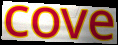
cove